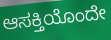
ಆಸಕ್ತಿಯೊಂದೇ